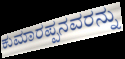
ಕುಮಾರಪ್ಪನವರನ್ನು